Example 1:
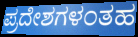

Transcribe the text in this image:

ಪ್ರದೇಶಗಳಂತಹ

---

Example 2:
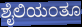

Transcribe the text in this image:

ಶೈಲಿಯಂತೂ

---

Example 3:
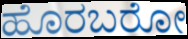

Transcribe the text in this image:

ಹೊರಬರೋ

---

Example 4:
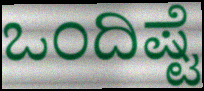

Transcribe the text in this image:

ಒಂದಿಷ್ಟೆ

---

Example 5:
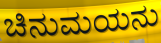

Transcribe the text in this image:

ಚಿನುಮಯನು